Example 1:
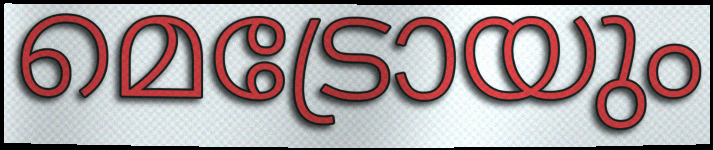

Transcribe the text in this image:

മെട്രോയും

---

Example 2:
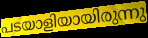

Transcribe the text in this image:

പടയാളിയായിരുന്നു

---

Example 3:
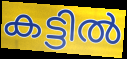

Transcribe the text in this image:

കട്ടിൽ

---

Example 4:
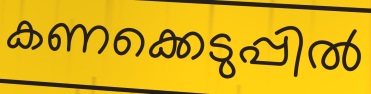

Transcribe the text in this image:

കണക്കെടുപ്പിൽ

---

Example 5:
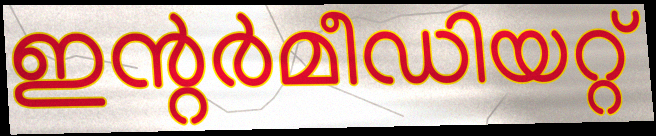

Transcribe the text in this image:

ഇന്റർമീഡിയറ്റ്